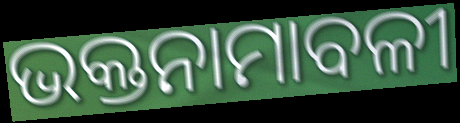
ଭକ୍ତନାମାବଳୀ